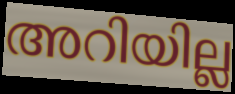
അറിയില്ല